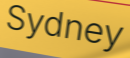
Sydney